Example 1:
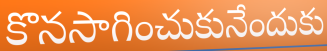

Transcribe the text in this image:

కొనసాగించుకునేందుకు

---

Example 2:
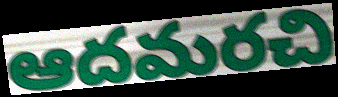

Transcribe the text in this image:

ఆదమరచి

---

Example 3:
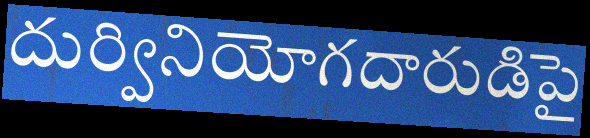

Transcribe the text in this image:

దుర్వినియోగదారుడిపై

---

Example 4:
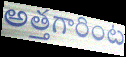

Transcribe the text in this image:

అత్తగారింట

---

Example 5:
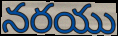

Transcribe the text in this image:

నరయు